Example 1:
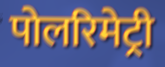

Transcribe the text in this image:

पोलरिमेट्री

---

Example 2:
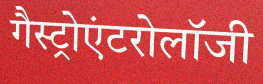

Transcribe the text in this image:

गैस्ट्रोएंटरोलॉजी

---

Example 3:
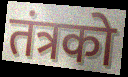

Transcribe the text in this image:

तंत्रको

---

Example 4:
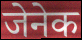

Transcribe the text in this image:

जेनेक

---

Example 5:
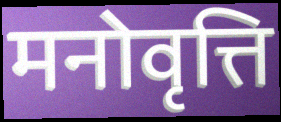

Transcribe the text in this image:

मनोवृत्ति